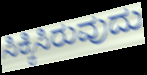
ಸಿಕ್ಕಿಸಿರುವುದು